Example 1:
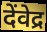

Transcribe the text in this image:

देंवेद्र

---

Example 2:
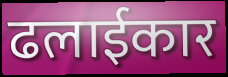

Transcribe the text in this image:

ढलाईकार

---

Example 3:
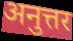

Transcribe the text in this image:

अनुत्तर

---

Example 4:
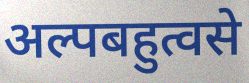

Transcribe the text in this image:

अल्पबहुत्वसे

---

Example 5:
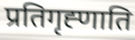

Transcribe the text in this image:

प्रतिगृह्णाति